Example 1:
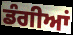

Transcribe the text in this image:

ਡੰਗੀਆਂ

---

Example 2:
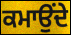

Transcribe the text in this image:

ਕਮਾਉਂਦੇ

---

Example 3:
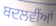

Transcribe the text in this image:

ਬਦਲਵੀਂਆਂ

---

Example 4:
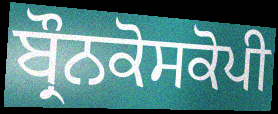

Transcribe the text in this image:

ਬ੍ਰੌਨਕੋਸਕੋਪੀ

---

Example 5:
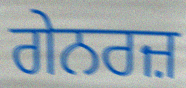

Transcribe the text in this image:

ਗੇਨਰਜ਼